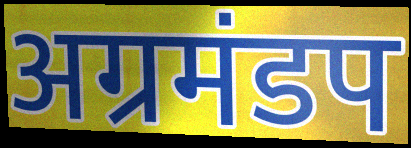
अग्रमंडप